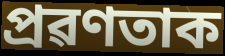
প্ৰৱণতাক